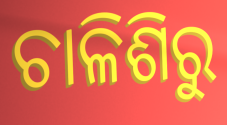
ଚାଳିଶିରୁ